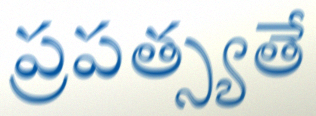
ప్రపత్స్యతే